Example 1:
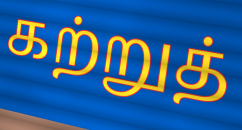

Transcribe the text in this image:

கற்றுத்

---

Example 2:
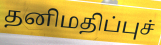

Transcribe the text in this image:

தனிமதிப்புச்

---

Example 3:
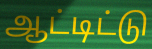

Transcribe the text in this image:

ஆட்டிட்டு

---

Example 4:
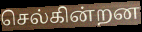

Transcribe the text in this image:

செல்கின்றன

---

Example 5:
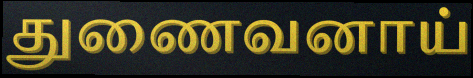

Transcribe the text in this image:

துணைவனாய்